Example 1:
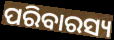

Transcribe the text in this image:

ପରିବାରସ୍ୟ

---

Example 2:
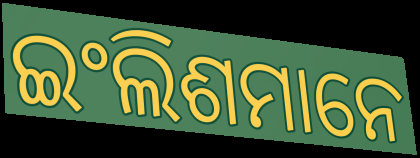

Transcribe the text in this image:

ଇଂଲିଶମାନେ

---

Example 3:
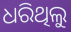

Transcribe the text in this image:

ଧରିଥିଲୁ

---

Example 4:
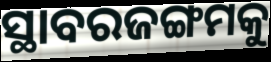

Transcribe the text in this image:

ସ୍ଥାବରଜଙ୍ଗମକୁ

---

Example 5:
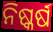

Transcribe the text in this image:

ନିଷ୍କର୍ଷ